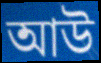
আউ